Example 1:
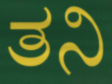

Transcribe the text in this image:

ತನಿ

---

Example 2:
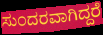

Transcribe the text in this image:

ಸುಂದರವಾಗಿದ್ದರೆ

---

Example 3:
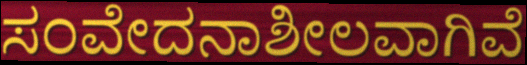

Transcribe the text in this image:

ಸಂವೇದನಾಶೀಲವಾಗಿವೆ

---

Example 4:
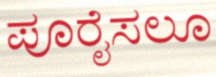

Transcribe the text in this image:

ಪೂರೈಸಲೂ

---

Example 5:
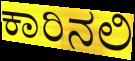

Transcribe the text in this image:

ಕಾರಿನಲಿ